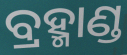
ବ୍ରହ୍ମାଣ୍ଡ